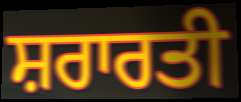
ਸ਼ਰਾਰਤੀ